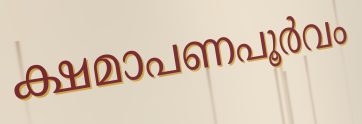
ക്ഷമാപണപൂർവം